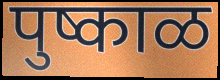
पुष्काळ